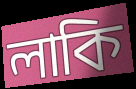
লাকি